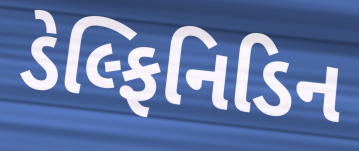
ડેલ્ફિનિડિન